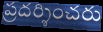
ప్రదర్శించరు